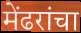
मेंढरांचा